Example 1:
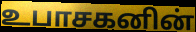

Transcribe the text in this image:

உபாசகனின்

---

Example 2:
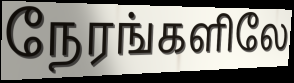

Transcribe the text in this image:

நேரங்களிலே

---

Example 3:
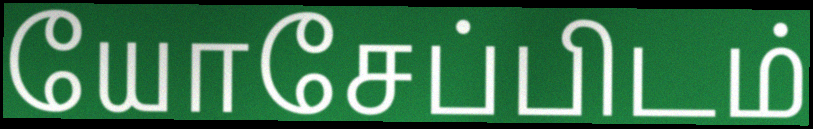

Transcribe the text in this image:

யோசேப்பிடம்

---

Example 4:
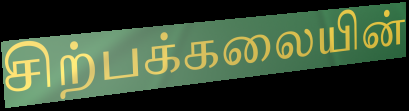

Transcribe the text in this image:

சிற்பக்கலையின்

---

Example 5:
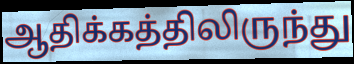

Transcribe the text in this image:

ஆதிக்கத்திலிருந்து